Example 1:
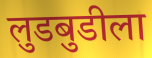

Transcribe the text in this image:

लुडबुडीला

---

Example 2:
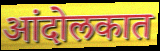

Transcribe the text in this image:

आंदोलकात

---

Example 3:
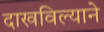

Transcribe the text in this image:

दाखविल्याने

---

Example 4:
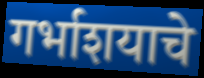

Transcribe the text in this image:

गर्भाशयाचे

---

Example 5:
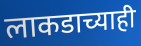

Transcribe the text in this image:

लाकडाच्याही